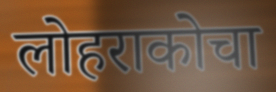
लोहराकोचा